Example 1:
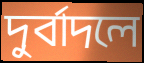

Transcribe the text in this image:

দুর্বাদলে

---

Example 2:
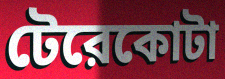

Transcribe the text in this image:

টেরেকোটা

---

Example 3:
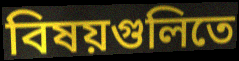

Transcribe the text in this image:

বিষয়গুলিতে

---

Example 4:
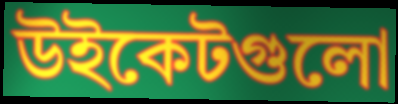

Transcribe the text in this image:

উইকেটগুলো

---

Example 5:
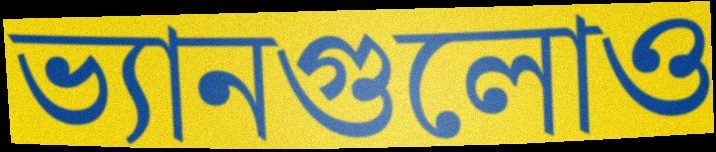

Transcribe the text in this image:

ভ্যানগুলোও